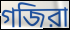
গজিরা